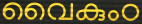
വൈകുംഠ